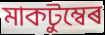
মাকটুম্বেৰ